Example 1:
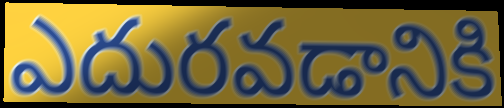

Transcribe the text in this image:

ఎదురవడానికి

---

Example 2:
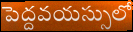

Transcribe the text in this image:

పెద్దవయస్సులో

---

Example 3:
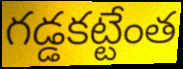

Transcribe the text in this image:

గడ్డకట్టేంత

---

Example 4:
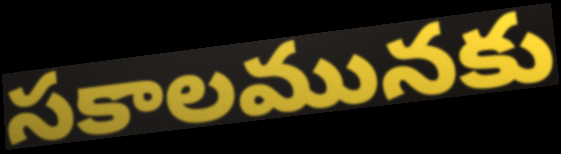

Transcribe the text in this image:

సకాలమునకు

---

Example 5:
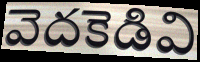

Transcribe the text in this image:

వెదకెడివి